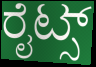
ರೈಟ್ಸ್